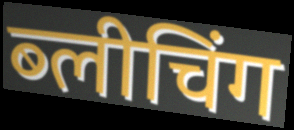
ब्‍लीचिंग